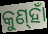
କୁଣ୍‌ହାଁ